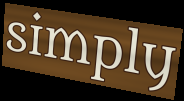
simply